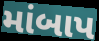
માંબાપ